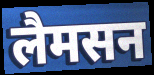
लैमसन